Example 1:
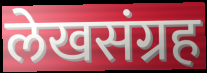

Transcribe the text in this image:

लेखसंग्रह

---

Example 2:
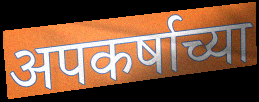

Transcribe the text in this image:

अपकर्षाच्या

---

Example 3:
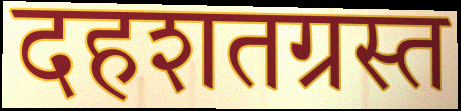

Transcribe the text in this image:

दहशतग्रस्त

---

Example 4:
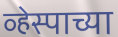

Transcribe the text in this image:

व्हेस्पाच्या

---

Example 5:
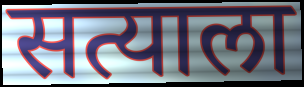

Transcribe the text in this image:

सत्याला